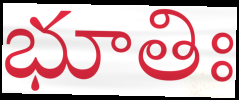
భూతిః